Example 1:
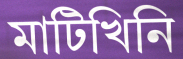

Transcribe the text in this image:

মাটিখিনি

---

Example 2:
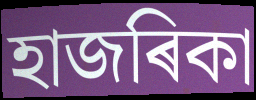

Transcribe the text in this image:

হাজৰিকা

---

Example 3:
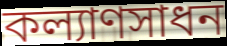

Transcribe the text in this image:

কল্যাণসাধন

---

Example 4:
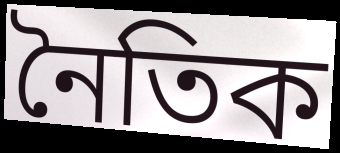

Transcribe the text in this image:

নৈতিক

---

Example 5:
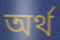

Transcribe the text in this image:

অৰ্থ